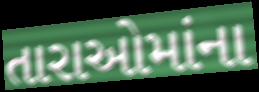
તારાઓમાંના